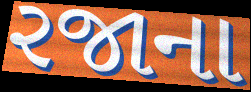
રજાના